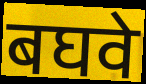
बघवे